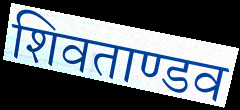
शिवताण्डव